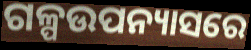
ଗଳ୍ପଉପନ୍ୟାସରେ